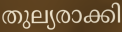
തുല്യരാക്കി